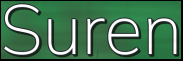
Suren